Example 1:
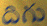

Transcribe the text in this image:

దిగు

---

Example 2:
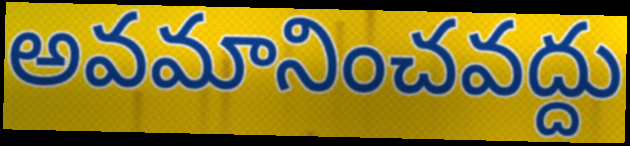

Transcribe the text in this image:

అవమానించవద్దు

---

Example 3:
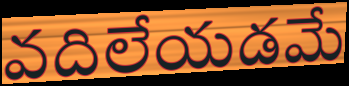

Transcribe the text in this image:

వదిలేయడమే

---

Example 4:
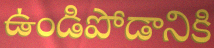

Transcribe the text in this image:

ఉండిపోడానికి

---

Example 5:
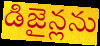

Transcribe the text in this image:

డిజైన్లను